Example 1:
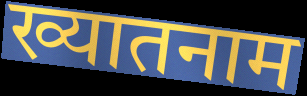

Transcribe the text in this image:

ख्यातनाम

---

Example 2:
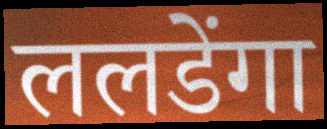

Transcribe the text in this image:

ललडेंगा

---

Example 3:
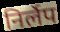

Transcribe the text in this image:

निर्लेप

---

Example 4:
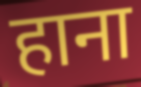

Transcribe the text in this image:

हाना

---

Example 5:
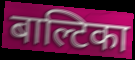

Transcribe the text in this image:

बाल्टिका